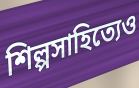
শিল্পসাহিত্যেও